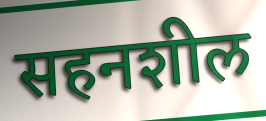
सहनशील